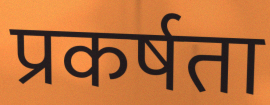
प्रकर्षता